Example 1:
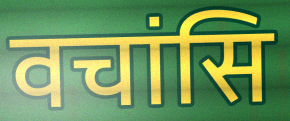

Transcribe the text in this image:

वचांसि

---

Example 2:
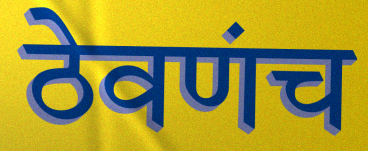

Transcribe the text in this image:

ठेवणंच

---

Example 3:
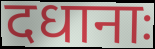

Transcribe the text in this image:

दधानाः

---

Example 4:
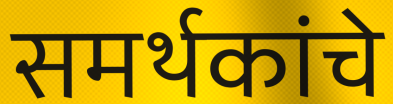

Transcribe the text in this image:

समर्थकांचे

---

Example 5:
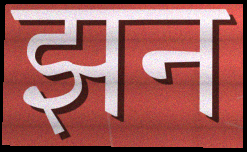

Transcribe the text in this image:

झन